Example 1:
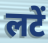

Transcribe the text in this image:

लटें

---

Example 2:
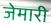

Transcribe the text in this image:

जेमारी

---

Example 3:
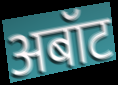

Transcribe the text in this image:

अबॉट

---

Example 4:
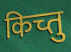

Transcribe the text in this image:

किच्तु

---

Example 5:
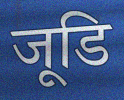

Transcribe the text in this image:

जूडि